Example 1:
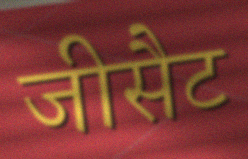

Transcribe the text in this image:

जीसैट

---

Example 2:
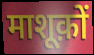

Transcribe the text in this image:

माशूक़ों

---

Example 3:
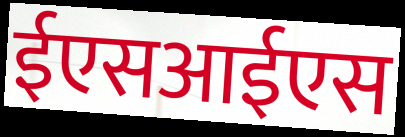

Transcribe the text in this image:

ईएसआईएस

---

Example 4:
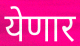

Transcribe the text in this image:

येणार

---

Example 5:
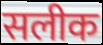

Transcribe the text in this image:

सलीक